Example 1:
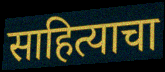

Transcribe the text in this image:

साहित्याचा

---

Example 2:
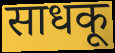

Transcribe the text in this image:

साधकू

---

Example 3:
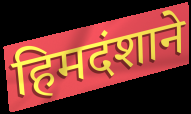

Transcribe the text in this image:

हिमदंशाने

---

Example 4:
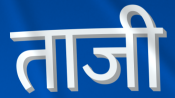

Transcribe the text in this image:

ताजी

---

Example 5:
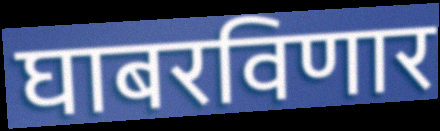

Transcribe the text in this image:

घाबरविणार